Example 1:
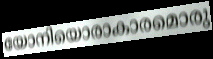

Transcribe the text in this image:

യോനിയൊരാകാരമൊരു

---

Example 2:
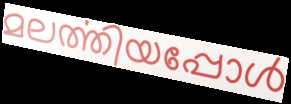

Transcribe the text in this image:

മലൎത്തിയപ്പോൾ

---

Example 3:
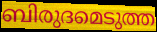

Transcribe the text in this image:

ബിരുദമെടുത്ത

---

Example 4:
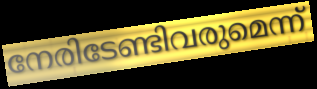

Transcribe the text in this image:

നേരിടേണ്ടിവരുമെന്ന്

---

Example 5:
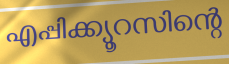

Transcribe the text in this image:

എപ്പിക്ക്യൂറസിന്റെ